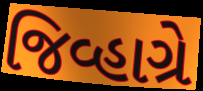
જિવ્હાગ્રે